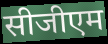
सीजीएम